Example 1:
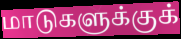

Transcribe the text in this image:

மாடுகளுக்குக்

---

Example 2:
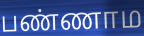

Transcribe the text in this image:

பண்ணாம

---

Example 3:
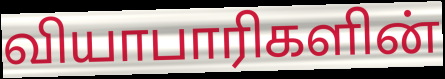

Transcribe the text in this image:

வியாபாரிகளின்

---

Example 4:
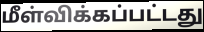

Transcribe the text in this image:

மீள்விக்கப்பட்டது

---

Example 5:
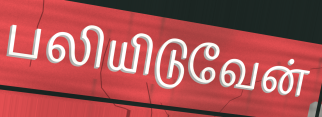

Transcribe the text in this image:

பலியிடுவேன்